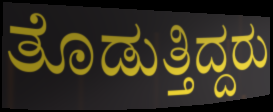
ತೊಡುತ್ತಿದ್ದರು